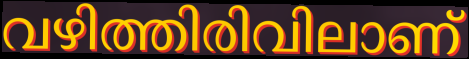
വഴിത്തിരിവിലാണ്